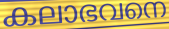
കലാഭവനെ